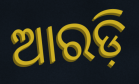
ଆରଡ଼ି